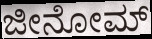
ಜೀನೋಮ್